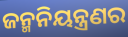
ଜନ୍ମନିୟନ୍ତ୍ରଣର